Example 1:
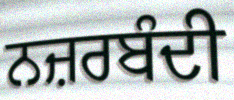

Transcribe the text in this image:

ਨਜ਼ਰਬੰਦੀ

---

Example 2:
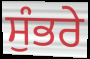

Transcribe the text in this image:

ਸੁੰਭਰੇ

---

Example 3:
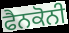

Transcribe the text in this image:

ਫੈਨਕੋਨੀ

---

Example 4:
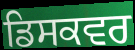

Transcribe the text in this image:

ਡਿਸਕਵਰ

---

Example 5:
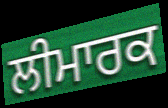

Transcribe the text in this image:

ਲੀਮਾਰਕ